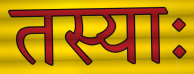
तस्याः